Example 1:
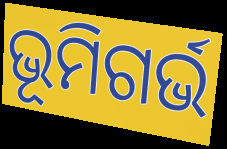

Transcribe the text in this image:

ଭୂମିଗର୍ଭ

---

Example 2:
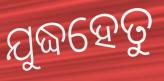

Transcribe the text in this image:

ଯୁଦ୍ଧହେତୁ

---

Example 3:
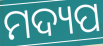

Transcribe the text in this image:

ମଦ୍ୟପ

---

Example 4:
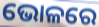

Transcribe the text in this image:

ଭୋଳରେ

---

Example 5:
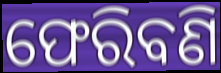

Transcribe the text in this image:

ଫେରିବଣି